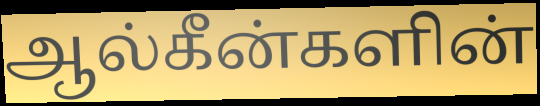
ஆல்கீன்களின்